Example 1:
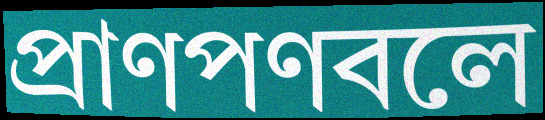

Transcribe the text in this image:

প্রাণপণবলে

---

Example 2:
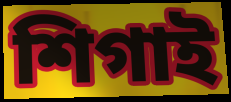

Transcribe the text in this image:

শিগাই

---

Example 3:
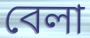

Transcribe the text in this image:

বেলা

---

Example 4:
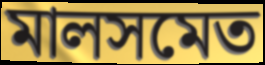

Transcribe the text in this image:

মালসমেত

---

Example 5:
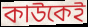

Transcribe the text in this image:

কাউকেই